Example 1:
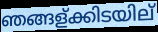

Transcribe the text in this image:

ഞങ്ങള്ക്കിടയില്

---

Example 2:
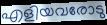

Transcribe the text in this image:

എളിയവരോടു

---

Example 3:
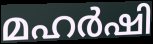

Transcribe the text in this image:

മഹർഷി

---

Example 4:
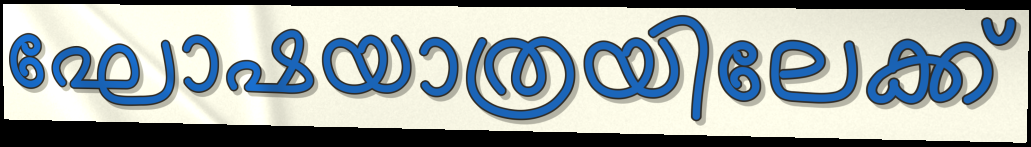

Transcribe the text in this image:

ഘോഷയാത്രയിലേക്ക്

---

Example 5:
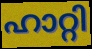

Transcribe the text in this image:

ഹാറ്റി